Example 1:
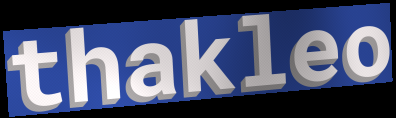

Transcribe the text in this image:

thakleo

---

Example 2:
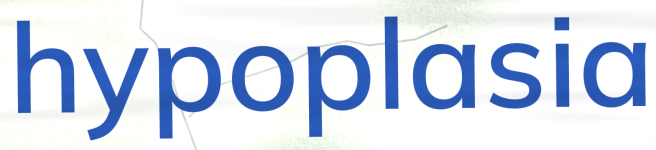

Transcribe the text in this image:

hypoplasia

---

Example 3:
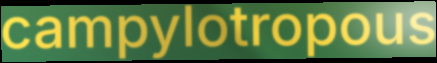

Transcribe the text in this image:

campylotropous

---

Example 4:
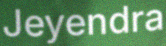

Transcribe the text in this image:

Jeyendra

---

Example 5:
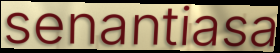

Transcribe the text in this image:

senantiasa